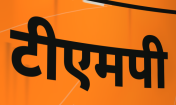
टीएमपी